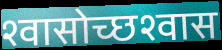
श्वासोच्छश्वास